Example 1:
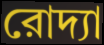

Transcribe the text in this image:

রোদ্যা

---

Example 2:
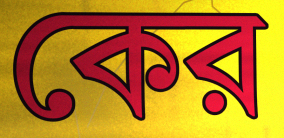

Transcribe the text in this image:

কের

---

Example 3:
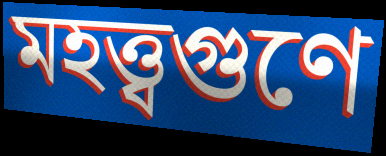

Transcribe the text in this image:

মহত্ত্বগুণে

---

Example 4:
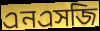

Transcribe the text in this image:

এনএসজি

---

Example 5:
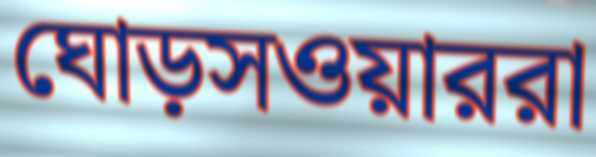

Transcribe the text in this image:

ঘোড়সওয়াররা